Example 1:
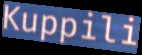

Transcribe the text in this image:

Kuppili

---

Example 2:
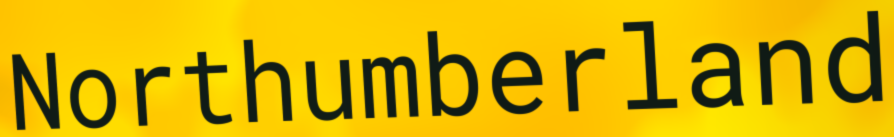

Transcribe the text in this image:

Northumberland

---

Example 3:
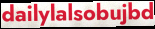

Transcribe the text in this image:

dailylalsobujbd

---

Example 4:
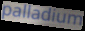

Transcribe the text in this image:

palladium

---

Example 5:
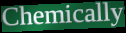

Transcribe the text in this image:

Chemically